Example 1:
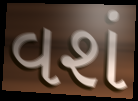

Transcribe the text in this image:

વશં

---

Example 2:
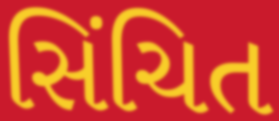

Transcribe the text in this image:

સિંચિત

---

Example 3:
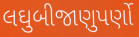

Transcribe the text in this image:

લઘુબીજાણુપર્ણો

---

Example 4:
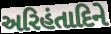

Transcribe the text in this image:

અરિહંતાદિને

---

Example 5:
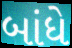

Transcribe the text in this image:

બાંધે